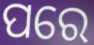
ପରେ